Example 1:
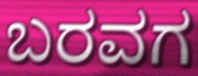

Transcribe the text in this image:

ಬರವಗ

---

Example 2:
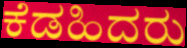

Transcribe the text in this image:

ಕೆಡಹಿದರು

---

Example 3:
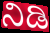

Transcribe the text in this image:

ನಿಡಿ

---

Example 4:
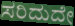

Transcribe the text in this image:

ಸರಿದುದೇ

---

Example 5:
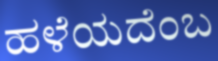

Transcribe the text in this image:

ಹಳೆಯದೆಂಬ